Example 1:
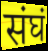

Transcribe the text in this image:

संघं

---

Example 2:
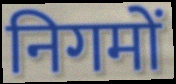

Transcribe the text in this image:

निगमों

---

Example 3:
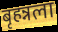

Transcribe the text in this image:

बृहन्नला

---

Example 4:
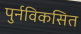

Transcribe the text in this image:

पुर्नविकसित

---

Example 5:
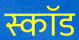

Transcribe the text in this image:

स्कॉड